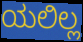
ಯಲಿಲ್ಲ